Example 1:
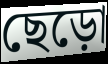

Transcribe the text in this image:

ছেড়ো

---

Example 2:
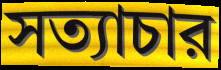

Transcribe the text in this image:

সত্যাচার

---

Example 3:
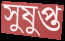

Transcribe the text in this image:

সুষুপ্ত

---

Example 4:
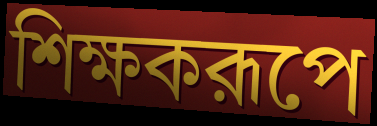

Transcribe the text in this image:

শিক্ষকরূপে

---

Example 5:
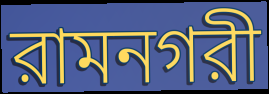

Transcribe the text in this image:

রামনগরী